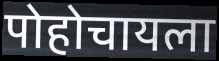
पोहोचायला